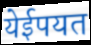
येईपयत